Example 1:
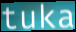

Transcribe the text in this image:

tuka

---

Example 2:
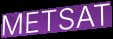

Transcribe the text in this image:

METSAT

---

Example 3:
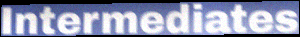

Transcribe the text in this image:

Intermediates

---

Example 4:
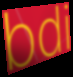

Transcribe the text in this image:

bdi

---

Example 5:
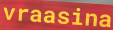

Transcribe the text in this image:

vraasina